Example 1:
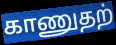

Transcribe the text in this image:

காணுதற்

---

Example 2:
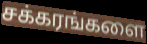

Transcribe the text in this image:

சக்கரங்களை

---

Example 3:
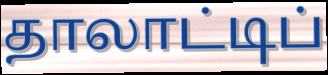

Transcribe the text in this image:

தாலாட்டிப்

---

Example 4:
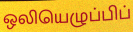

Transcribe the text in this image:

ஒலியெழுப்பிப்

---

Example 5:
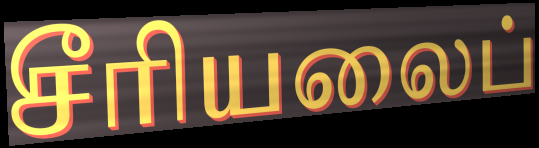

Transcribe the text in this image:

சீரியலைப்